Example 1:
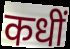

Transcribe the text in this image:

कधीं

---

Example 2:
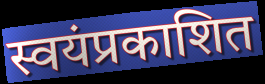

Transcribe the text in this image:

स्वयंप्रकाशित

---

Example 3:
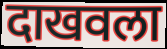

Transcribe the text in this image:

दाखवला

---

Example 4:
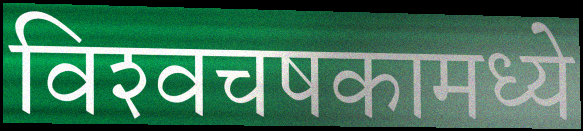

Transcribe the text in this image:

विश्वचषकामध्ये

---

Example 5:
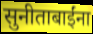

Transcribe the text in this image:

सुनीताबाईंना